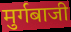
मुर्गबाजी